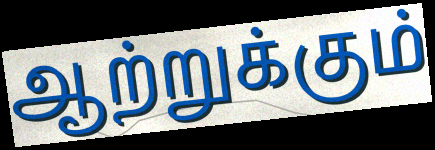
ஆற்றுக்கும்